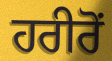
ਹਰੀਰੋਂ